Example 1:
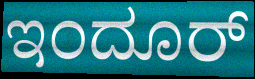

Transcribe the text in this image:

ಇಂದೂರ್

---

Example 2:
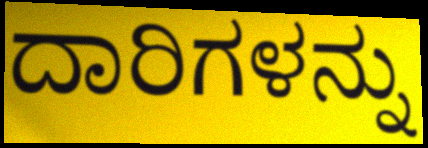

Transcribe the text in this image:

ದಾರಿಗಳನ್ನು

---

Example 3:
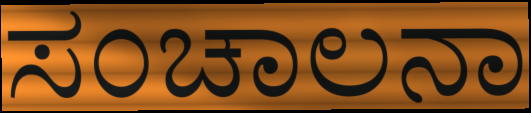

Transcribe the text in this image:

ಸಂಚಾಲನಾ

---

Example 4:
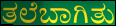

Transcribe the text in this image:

ತಲೆಬಾಗಿತು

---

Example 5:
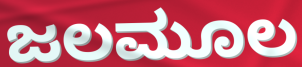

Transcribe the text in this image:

ಜಲಮೂಲ